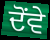
ਦੋਂਵੇ